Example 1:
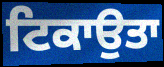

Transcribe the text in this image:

ਟਿਕਾਉਤਾ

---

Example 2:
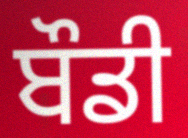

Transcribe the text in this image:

ਬੌਡੀ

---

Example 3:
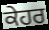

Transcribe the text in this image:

ਕੇਹਰ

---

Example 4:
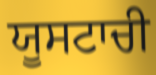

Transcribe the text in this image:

ਯੂਸਟਾਚੀ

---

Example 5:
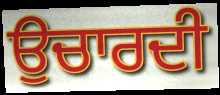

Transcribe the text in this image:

ਉਚਾਰਦੀ